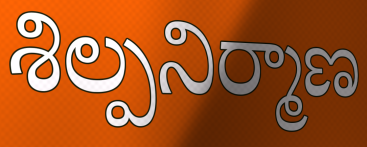
శిల్పనిర్మాణ